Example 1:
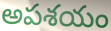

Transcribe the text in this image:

అపశయం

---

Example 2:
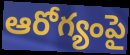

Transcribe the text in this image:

ఆరోగ్యంపై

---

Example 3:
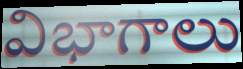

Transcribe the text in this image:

విభాగాలు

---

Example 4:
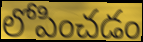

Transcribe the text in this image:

లోపించడం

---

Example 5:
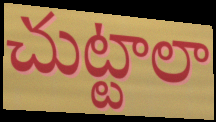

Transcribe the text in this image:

చుట్టాలా